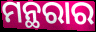
ମନ୍ଥରାର